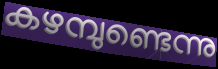
കഴമ്പുണ്ടെന്നു